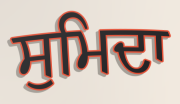
ਸੁਮਿਦਾ